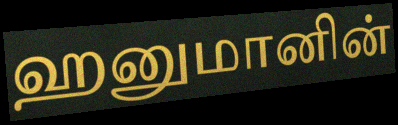
ஹனுமானின்